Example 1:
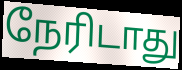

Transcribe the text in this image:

நேரிடாது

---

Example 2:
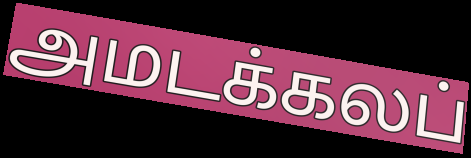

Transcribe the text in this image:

அமடக்கலப்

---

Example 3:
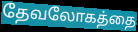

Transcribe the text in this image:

தேவலோகத்தை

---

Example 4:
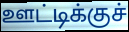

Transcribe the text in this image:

ஊட்டிக்குச்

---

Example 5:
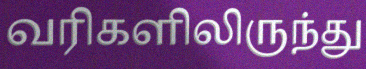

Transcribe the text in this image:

வரிகளிலிருந்து